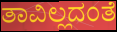
ತಾವಿಲ್ಲದಂತೆ